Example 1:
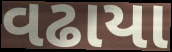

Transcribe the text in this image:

વઢાયા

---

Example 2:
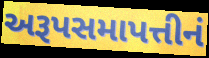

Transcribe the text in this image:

અરૂપસમાપત્તીનં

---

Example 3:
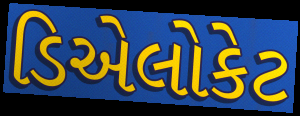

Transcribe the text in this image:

ડિએલોકેટ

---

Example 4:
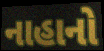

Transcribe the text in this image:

નાહાનો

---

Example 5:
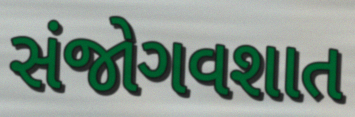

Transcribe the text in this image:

સંજોગવશાત